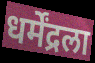
धर्मेंद्रला